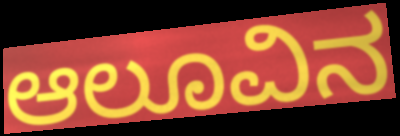
ಆಲೂವಿನ